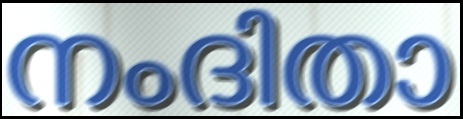
നംദിതാ